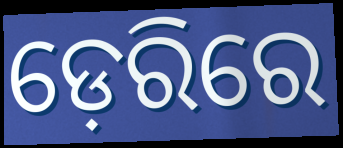
ଡ଼େରିରେ